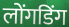
लोंगडिंग